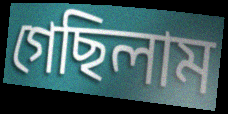
গেছিলাম